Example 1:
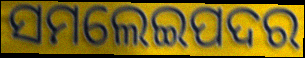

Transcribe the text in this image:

ସମଲେଇପଦର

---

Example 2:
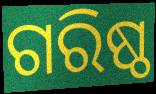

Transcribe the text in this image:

ଗରିଷ୍ଠ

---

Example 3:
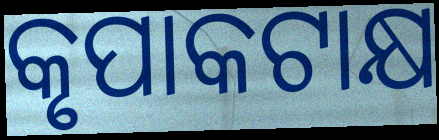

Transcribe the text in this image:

କୃପାକଟାକ୍ଷ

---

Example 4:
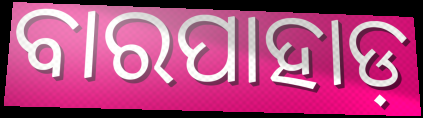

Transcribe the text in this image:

ବାରପାହାଡ଼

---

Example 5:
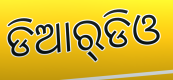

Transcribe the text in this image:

ଡିଆର୍‌ଡିଓ